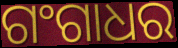
ଗଂଗାଧର